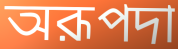
অরূপদা